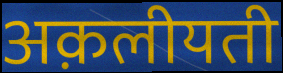
अक़लीयती